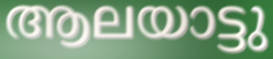
ആലയാട്ടു